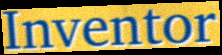
Inventor